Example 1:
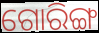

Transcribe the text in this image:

ଗୋରିଙ୍ଗ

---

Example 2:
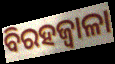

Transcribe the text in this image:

ବିରହଜ୍ୱାଳା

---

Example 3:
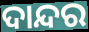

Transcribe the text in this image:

ଦାନ୍ଦର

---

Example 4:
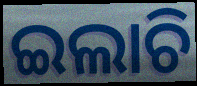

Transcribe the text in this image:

ଇଲାଚି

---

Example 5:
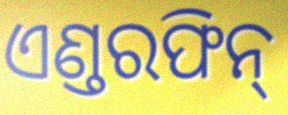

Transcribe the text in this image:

ଏଣ୍ଡରଫିନ୍